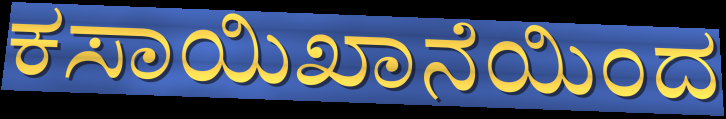
ಕಸಾಯಿಖಾನೆಯಿಂದ